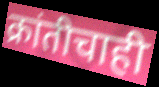
क्रांतीचाही